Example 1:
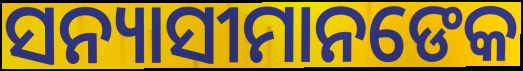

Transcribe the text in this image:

ସନ୍ୟାସୀମାନଙେକ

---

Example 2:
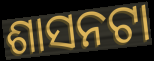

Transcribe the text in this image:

ଶାସନଟା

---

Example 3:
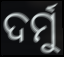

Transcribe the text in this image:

ଦର୍ମୁ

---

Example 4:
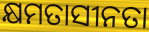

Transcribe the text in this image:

କ୍ଷମତାସୀନତା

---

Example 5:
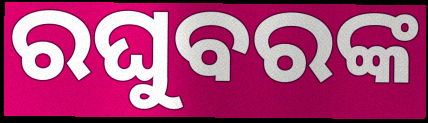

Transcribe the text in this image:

ରଘୁବରଙ୍କ